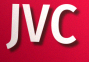
JVC